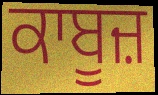
ਕਾਬੂਜ਼